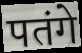
पतंगे